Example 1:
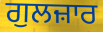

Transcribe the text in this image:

ਗੁਲਜ਼ਾਰ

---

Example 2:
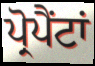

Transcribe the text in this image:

ਪ੍ਰੋਪੈਂਟਾਂ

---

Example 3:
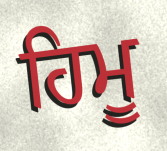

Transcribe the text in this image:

ਹਿਮੂ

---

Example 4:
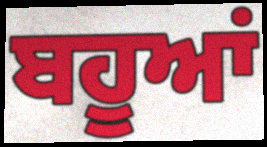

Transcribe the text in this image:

ਬਹੂਆਂ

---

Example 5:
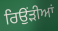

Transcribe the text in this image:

ਰਿਉਂੜੀਆਂ